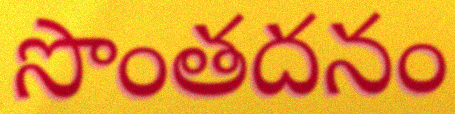
సొంతదనం